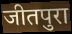
जीतपुरा